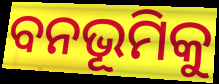
ବନଭୂମିକୁ